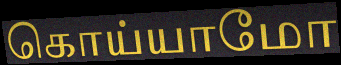
கொய்யாமோ